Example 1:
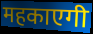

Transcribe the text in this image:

महकाएगी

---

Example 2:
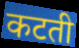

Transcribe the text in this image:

कटती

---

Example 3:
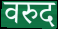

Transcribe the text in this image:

वरुद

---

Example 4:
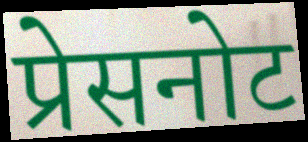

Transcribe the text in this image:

प्रेसनोट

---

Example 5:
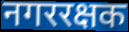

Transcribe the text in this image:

नगररक्षक